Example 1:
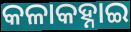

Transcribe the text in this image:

କଳାକହ୍ନାଇ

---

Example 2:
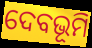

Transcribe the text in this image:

ଦେବଭୂମି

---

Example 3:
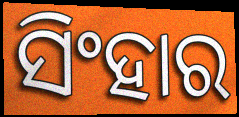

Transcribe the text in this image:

ସିଂହାର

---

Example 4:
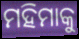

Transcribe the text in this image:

ମହିମାକୁ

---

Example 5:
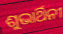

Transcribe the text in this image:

ଶୁଭାର୍ଥିନୀ